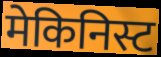
मेकिनिस्ट